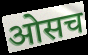
ओसच